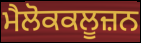
ਮੈਲੋਕਕਲੂਜ਼ਨ